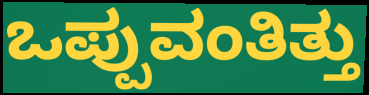
ಒಪ್ಪುವಂತಿತ್ತು